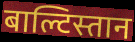
बाल्टिस्तान